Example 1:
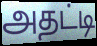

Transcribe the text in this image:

அதட்டி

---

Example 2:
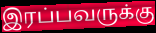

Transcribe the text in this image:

இரப்பவருக்கு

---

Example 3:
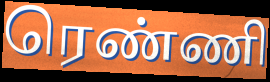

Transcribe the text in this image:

ரெண்ணி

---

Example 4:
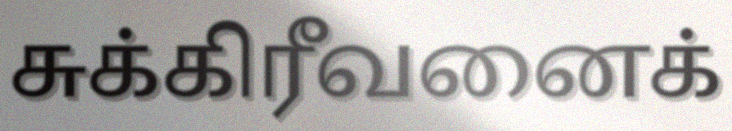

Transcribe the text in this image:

சுக்கிரீவனைக்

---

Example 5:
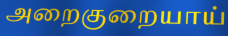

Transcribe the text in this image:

அறைகுறையாய்